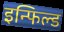
इन्फिल्ड